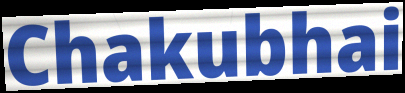
Chakubhai